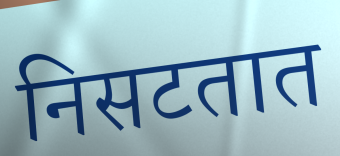
निसटतात